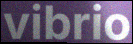
vibrio